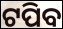
ଟପିବ